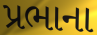
પ્રભાના